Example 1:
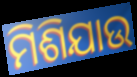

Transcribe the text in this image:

ମିଶିଯାଉ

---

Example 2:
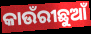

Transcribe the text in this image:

କାଉଁରୀଛୁଆଁ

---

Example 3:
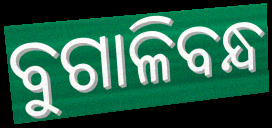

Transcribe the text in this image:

ବୁଗାଳିବନ୍ଧ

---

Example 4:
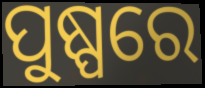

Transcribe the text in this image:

ପୁଷ୍ପରେ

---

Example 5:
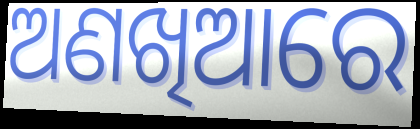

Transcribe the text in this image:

ଅଣଖିଆରେ